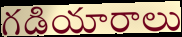
గడియారాలు